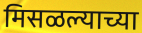
मिसळल्याच्या